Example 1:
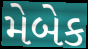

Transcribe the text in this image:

મેબેક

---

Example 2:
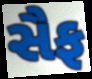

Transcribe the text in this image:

સૈફ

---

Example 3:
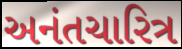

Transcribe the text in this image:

અનંતચારિત્ર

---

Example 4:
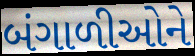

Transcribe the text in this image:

બંગાળીઓને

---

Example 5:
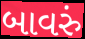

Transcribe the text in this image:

બાવરું